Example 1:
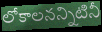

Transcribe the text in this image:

లోకాలనన్నిటినీ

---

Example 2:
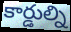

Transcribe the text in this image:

కార్డుల్ని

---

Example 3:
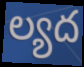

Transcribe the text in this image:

ల్యద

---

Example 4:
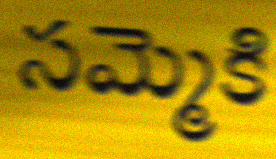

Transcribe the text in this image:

సమ్మెకి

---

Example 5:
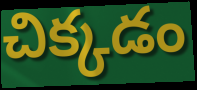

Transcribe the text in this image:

చిక్కడం